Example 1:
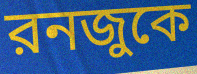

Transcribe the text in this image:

রনজুকে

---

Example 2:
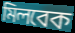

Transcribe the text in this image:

মিলবেক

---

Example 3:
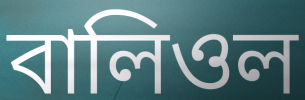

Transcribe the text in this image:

বালিওল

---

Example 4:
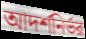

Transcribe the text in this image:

আদর্শনির্ভর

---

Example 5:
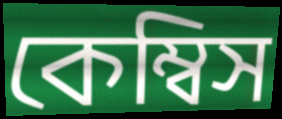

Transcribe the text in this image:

কেম্বিস